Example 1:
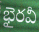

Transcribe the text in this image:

భైరవీ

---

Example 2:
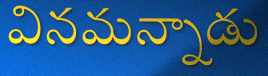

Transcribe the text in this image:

వినమన్నాడు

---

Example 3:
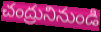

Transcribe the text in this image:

చంద్రునినుండి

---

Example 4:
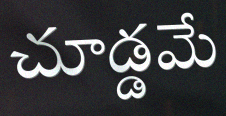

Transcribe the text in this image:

చూడ్డమే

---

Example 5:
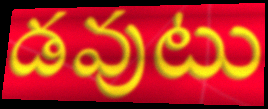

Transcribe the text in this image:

డవుటు